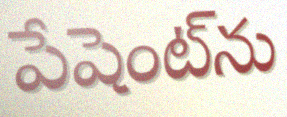
పేషెంట్‌ను